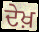
ਦੇਖ਼